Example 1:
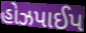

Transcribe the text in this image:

હોઝપાઈપ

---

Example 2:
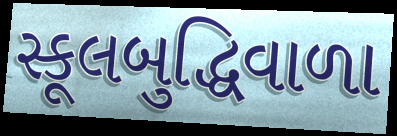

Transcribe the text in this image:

સ્કૂલબુદ્ધિવાળા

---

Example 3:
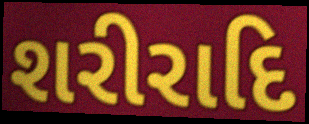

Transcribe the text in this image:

શરીરાદિ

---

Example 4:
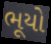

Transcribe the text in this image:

ભૂયો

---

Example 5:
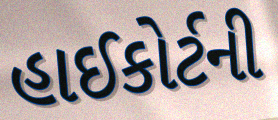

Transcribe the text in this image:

હાઈકોર્ટની